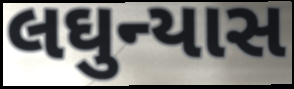
લઘુન્યાસ